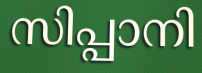
സിപ്പാനി